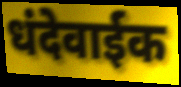
धंदेवाईक